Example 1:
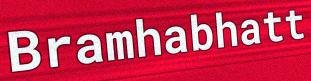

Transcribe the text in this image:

Bramhabhatt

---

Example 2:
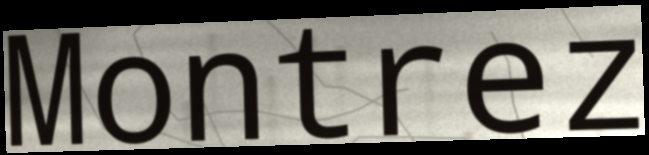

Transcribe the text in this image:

Montrez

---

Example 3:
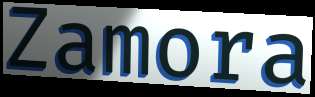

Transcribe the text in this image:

Zamora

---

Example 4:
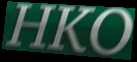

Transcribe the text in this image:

HKO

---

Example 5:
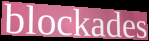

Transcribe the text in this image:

blockades